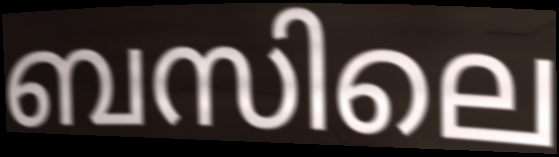
ബസിലെ